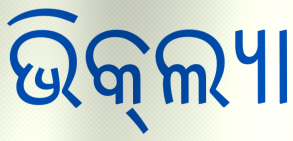
ଭିକ୍‌ଲ୍ୟା